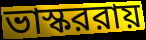
ভাস্কররায়